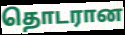
தொடரான